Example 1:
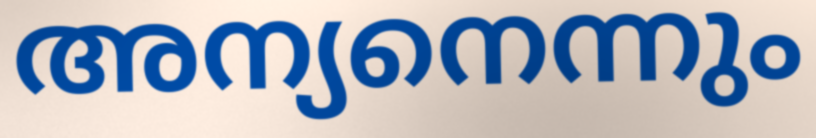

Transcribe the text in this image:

അന്യനെന്നും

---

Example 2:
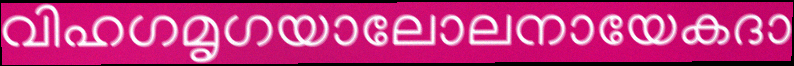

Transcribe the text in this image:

വിഹഗമൃഗയാലോലനായേകദാ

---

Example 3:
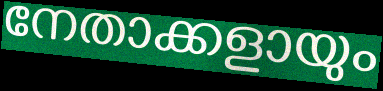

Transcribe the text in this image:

നേതാക്കളായും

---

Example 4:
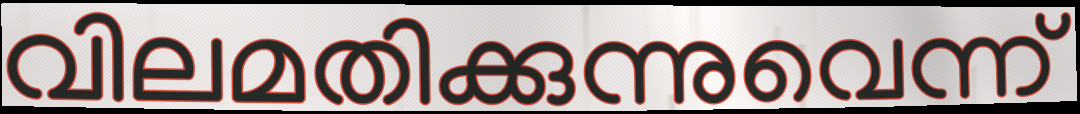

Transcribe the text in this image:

വിലമതിക്കുന്നുവെന്ന്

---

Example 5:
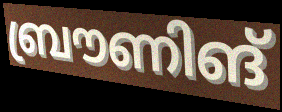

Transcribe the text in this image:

ബ്രൗണിങ്